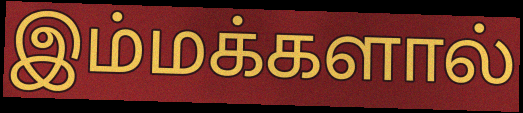
இம்மக்களால்